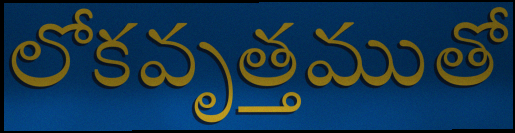
లోకవృత్తముతో